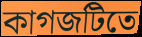
কাগজটিতে